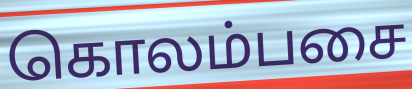
கொலம்பசை